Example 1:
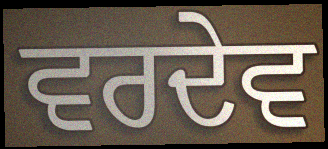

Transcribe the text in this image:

ਵਰਦੇਵ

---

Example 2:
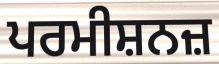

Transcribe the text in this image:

ਪਰਮੀਸ਼ਨਜ਼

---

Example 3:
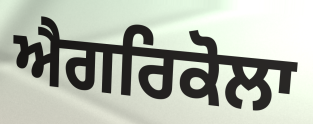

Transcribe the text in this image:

ਐਗਰਿਕੋਲਾ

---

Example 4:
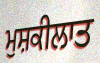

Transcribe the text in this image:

ਮੁਸ਼ਕੀਲਾਤ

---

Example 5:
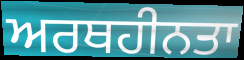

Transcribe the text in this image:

ਅਰਥਹੀਨਤਾ